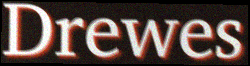
Drewes